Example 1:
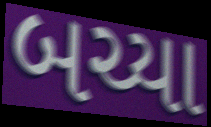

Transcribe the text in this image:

બચ્યા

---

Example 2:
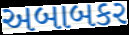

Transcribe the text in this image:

અબાબકર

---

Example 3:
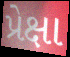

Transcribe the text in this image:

પ્રેક્ષા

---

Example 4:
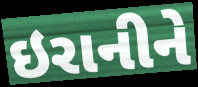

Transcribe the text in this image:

ઇરાનીને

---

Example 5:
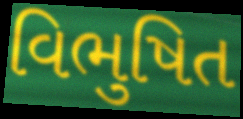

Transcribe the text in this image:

વિભુષિત